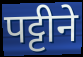
पट्टीने